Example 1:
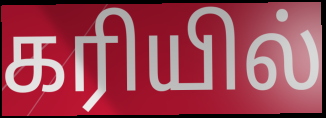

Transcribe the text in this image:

கரியில்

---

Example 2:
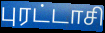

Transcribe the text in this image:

புரட்டாசி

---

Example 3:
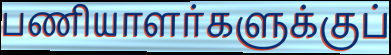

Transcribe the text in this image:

பணியாளர்களுக்குப்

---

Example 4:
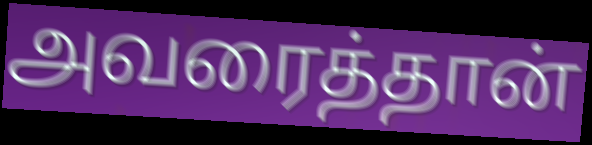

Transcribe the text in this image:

அவரைத்தான்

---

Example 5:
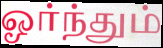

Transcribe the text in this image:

ஓர்ந்தும்